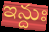
ఇన్దుః